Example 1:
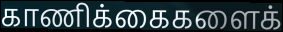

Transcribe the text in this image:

காணிக்கைகளைக்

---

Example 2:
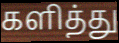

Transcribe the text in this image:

களித்து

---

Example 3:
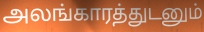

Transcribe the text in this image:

அலங்காரத்துடனும்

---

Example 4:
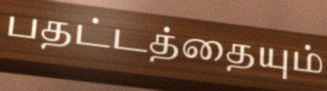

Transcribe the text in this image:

பதட்டத்தையும்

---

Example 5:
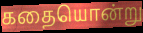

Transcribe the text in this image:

கதையொன்று